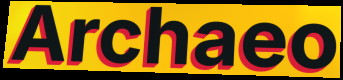
Archaeo